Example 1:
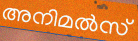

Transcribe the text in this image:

അനിമൽസ്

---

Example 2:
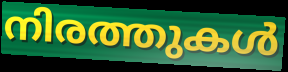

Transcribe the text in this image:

നിരത്തുകൾ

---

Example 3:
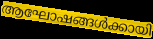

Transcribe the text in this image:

ആഘോഷങ്ങൾക്കായി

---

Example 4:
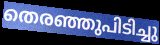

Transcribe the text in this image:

തെരഞ്ഞുപിടിച്ചു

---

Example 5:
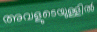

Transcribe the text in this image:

അവളുടെയുള്ളിൽ